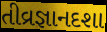
તીવ્રજ્ઞાનદશા